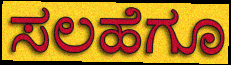
ಸಲಹೆಗೂ